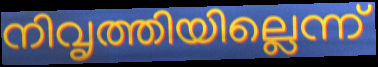
നിവൃത്തിയില്ലെന്ന്